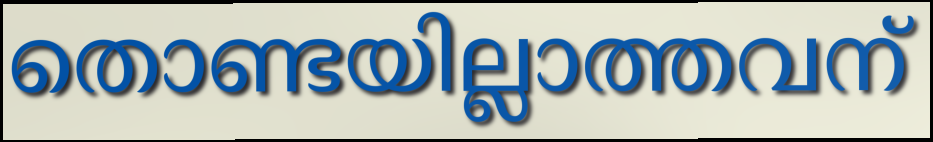
തൊണ്ടയില്ലാത്തവന്